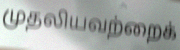
முதலியவற்றைக்